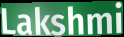
Lakshmi